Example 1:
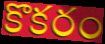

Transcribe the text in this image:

కొకరం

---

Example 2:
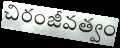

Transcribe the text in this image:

చిరంజీవత్వం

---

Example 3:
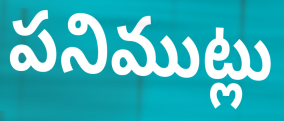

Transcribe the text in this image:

పనిముట్లు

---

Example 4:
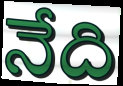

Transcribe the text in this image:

నేది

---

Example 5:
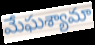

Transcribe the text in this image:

మేఘశ్యామా